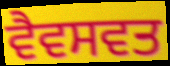
ਵੈਵਸਵਤ